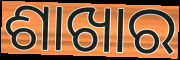
ଶାଖାର